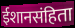
ईशानसंहिता